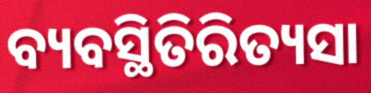
ବ୍ୟବସ୍ଥିତିରିତ୍ୟସା